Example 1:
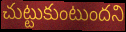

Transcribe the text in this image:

చుట్టుకుంటుందని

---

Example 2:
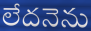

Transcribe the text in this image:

లేదనెను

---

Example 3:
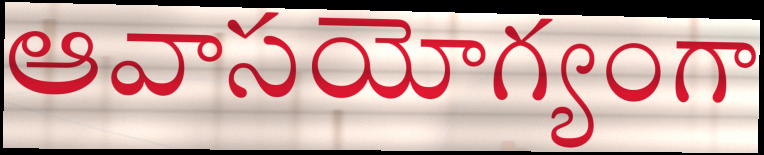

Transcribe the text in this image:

ఆవాసయోగ్యంగా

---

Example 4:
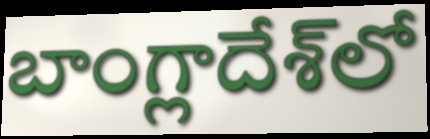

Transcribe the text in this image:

బాంగ్లాదేశ్‌లో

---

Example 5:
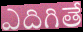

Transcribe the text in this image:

ఎదిగితే